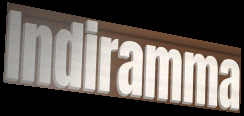
Indiramma